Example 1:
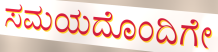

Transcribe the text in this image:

ಸಮಯದೊಂದಿಗೇ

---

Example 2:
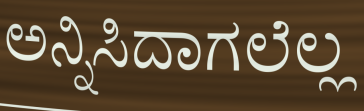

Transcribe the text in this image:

ಅನ್ನಿಸಿದಾಗಲೆಲ್ಲ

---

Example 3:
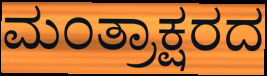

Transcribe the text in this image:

ಮಂತ್ರಾಕ್ಷರದ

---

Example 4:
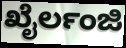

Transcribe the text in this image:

ಖೈರ್ಲಂಜಿ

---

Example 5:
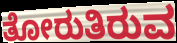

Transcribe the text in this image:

ತೋರುತಿರುವ